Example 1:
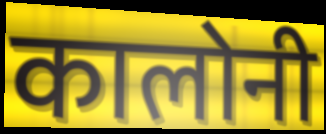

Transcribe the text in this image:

कालोनी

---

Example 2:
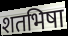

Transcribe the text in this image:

शतभिषा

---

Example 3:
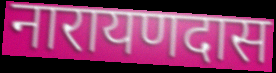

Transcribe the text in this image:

नारायणदास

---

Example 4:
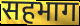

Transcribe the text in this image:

सहभाग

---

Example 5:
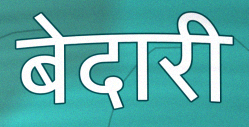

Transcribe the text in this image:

बेदारी